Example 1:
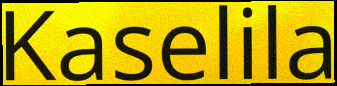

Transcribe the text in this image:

Kaselila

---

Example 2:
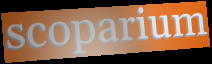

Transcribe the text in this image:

scoparium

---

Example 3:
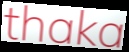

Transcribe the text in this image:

thaka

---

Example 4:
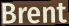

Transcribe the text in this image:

Brent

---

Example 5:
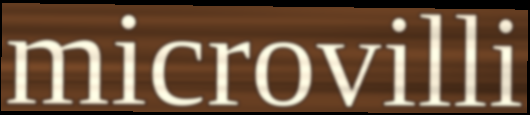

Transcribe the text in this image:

microvilli